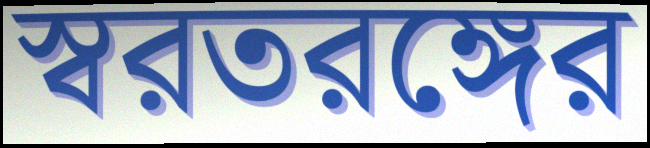
স্বরতরঙ্গের